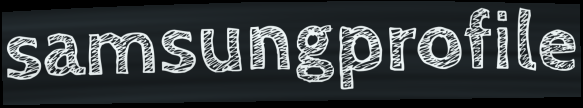
samsungprofile